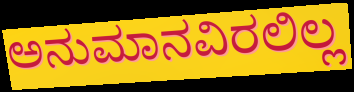
ಅನುಮಾನವಿರಲಿಲ್ಲ